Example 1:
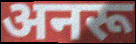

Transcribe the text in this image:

अनरू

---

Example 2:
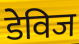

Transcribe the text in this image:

डेविज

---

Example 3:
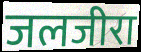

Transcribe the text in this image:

जलजीरा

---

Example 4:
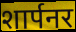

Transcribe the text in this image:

शार्पनर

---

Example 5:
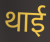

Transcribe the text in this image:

थाई